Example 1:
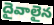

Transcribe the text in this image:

దైవాలైన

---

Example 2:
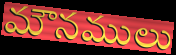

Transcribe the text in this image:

మౌనములు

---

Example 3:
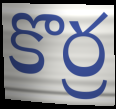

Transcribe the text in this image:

కొర్ర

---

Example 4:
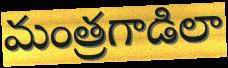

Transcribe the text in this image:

మంత్రగాడిలా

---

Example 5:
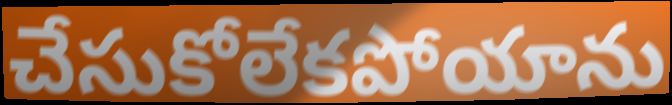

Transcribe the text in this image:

చేసుకోలేకపోయాను